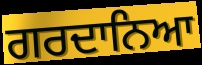
ਗਰਦਾਨਿਆ